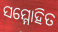
ସମ୍ମୋହିତ